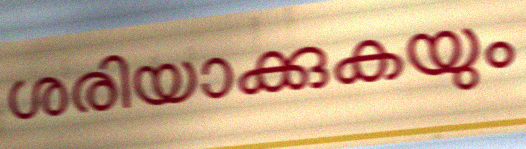
ശരിയാക്കുകയും